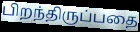
பிறந்திருப்பதை